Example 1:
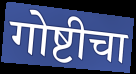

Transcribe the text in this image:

गोष्टीचा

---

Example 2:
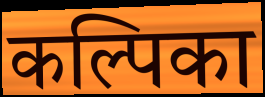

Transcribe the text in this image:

कल्पिका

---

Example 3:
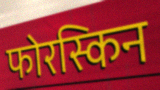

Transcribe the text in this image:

फोरस्किन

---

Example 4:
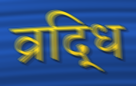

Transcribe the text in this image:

व्रद्धि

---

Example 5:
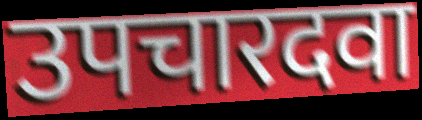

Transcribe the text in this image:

उपचारदवा